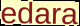
edara